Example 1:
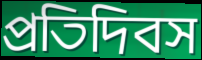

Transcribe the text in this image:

প্রতিদিবস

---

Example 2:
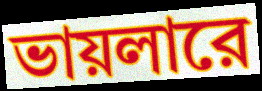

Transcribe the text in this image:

ভায়লারে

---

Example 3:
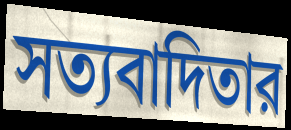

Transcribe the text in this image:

সত্যবাদিতার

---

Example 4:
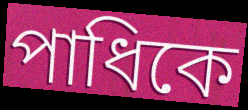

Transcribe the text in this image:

পাধিকে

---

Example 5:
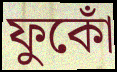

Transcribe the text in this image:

ফুকোঁ